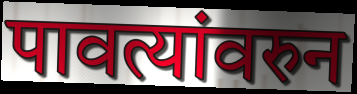
पावत्यांवरुन